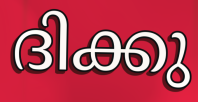
ദിക്കു